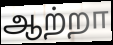
ஆற்றா